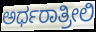
ಅರ್ಧರಾತ್ರೀಲಿ